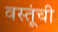
वस्तूंची